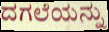
ದಗಲೆಯನ್ನು